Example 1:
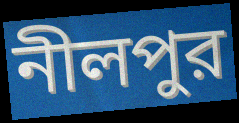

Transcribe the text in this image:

নীলপুর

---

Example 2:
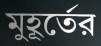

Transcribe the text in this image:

মুহূর্তের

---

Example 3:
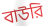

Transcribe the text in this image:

বাউরি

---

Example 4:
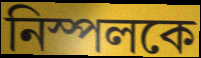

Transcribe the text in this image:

নিস্পলকে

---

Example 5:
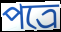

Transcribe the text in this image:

পত্রে